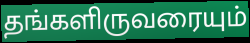
தங்களிருவரையும்